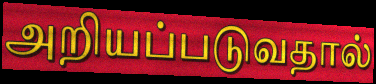
அறியப்படுவதால்